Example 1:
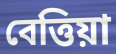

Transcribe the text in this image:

বেত্তিয়া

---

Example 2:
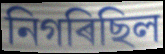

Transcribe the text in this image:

নিগৰিছিল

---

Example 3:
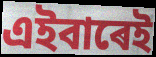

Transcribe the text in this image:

এইবাৰেই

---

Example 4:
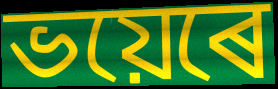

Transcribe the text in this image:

ভয়েৰে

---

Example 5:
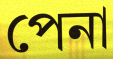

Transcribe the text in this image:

পেনা